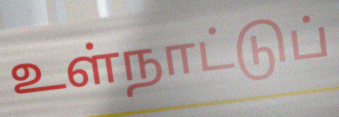
உள்நாட்டுப்